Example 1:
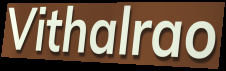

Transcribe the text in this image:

Vithalrao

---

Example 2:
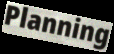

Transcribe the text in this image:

Planning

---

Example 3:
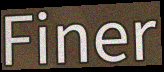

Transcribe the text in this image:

Finer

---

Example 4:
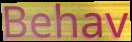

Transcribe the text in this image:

Behav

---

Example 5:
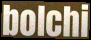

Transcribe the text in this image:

bolchi